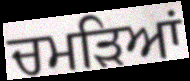
ਚਮੜਿਆਂ